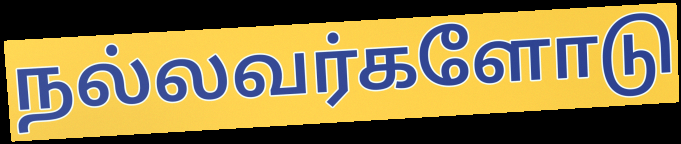
நல்லவர்களோடு